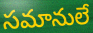
సమానులే